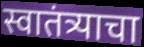
स्‍वातंत्र्याचा